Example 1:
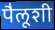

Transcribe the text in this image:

पैलूशी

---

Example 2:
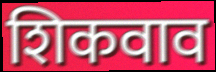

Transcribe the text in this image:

शिकवाव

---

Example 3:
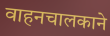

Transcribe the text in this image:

वाहनचालकाने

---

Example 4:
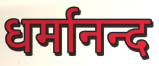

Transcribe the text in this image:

धर्मानन्द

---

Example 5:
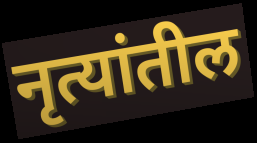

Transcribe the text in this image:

नृत्यांतील